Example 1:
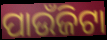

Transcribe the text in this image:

ପାଉଁଜିଟା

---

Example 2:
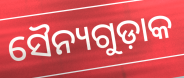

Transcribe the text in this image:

ସୈନ୍ୟଗୁଡ଼ାକ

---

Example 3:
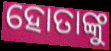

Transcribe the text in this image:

ହୋତାଙ୍କୁ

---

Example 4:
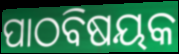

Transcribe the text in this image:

ପାଠବିଷୟକ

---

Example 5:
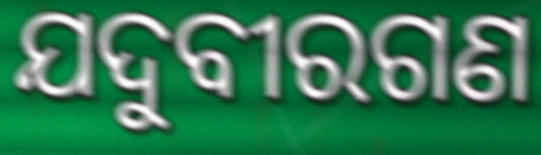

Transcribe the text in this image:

ଯଦୁବୀରଗଣ